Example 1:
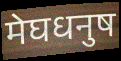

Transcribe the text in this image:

मेघधनुष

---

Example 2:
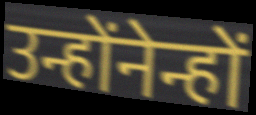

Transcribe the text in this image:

उन्होंनेन्हों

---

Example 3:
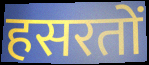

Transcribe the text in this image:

हसरतों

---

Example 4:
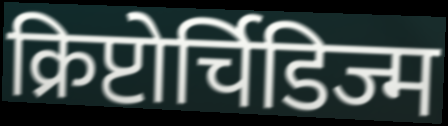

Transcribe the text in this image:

क्रिप्टोर्चिडिज्म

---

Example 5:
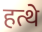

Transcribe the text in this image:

हत्थे